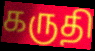
கருதி